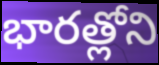
భారత్లోని